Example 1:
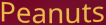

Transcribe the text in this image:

Peanuts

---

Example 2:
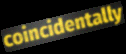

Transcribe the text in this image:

coincidentally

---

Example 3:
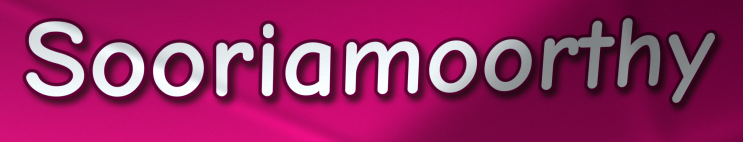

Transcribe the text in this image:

Sooriamoorthy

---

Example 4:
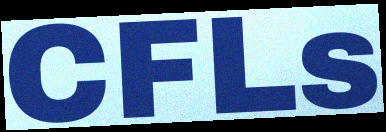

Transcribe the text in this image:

CFLs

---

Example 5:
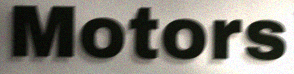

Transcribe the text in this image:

Motors